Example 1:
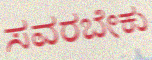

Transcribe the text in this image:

ಸವರಬೇಕು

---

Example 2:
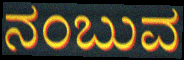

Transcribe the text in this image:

ನಂಬುವ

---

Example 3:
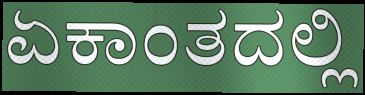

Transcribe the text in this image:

ಏಕಾಂತದಲ್ಲಿ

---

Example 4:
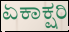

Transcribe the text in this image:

ಏಕಾಕ್ಷರಿ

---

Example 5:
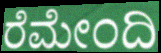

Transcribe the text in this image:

ರೆಮೇಂದಿ